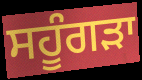
ਸਹੂੰਗੜਾ